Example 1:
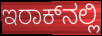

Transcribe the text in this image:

ಇರಾಕ್‍ನಲ್ಲಿ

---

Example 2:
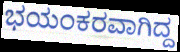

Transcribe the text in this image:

ಭಯಂಕರವಾಗಿದ್ದ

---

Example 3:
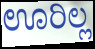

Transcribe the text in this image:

ಊರಿಲ್ಲ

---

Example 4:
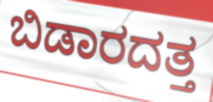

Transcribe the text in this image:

ಬಿಡಾರದತ್ತ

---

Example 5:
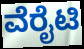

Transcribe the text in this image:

ವೆರೈಟಿ